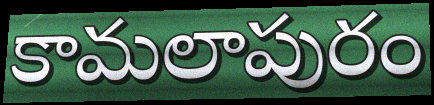
కామలాపురం